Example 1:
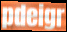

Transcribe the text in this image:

pdeigr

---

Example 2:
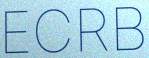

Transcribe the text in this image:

ECRB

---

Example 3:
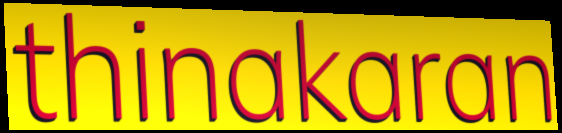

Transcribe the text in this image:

thinakaran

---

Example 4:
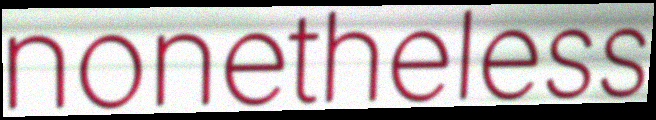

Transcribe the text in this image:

nonetheless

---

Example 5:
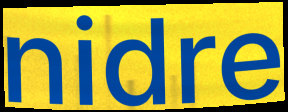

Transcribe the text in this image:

nidre